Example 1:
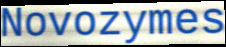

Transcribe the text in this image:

Novozymes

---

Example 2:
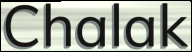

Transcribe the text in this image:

Chalak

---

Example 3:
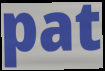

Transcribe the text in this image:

pat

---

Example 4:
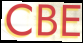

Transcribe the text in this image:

CBE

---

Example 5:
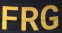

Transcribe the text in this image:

FRG